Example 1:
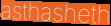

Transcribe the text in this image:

asthasheth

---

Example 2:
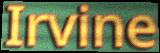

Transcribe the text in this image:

Irvine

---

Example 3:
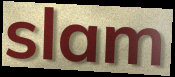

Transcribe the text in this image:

slam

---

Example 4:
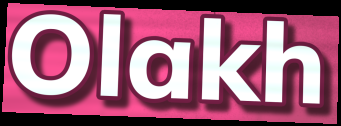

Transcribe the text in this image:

Olakh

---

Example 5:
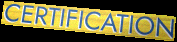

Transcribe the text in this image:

CERTIFICATION